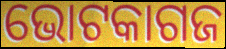
ଭୋଟକାଗଜ